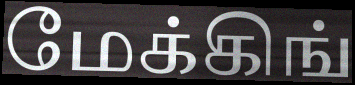
மேக்கிங்